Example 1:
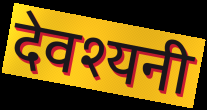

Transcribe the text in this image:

देवश्यनी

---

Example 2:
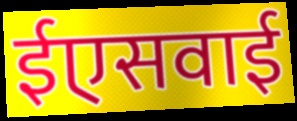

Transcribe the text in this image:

ईएसवाई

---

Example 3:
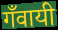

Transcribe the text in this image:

गँवायी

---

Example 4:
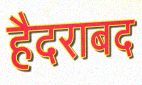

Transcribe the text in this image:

हैदराबद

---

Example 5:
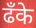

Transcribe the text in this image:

ढँके